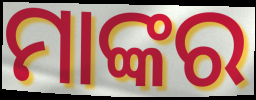
ମାଙ୍କର